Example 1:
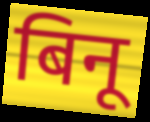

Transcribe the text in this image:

बिनू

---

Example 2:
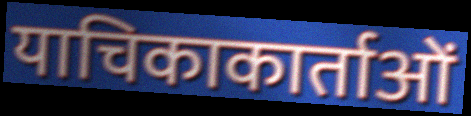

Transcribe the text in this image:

याचिकाकार्ताओं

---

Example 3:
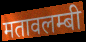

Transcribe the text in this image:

मतावलम्बी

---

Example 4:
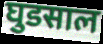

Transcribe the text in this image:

घुडसाल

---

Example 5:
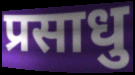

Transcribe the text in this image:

प्रसाधु